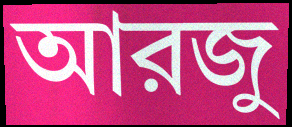
আরজু